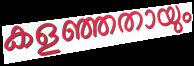
കളഞ്ഞതായും